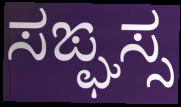
ಸಙ್ಘಸ್ಸ